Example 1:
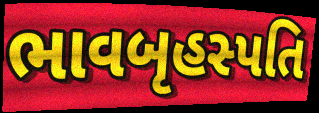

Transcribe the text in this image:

ભાવબૃહસ્પતિ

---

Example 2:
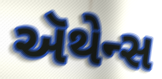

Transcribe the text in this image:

ઍથેન્સ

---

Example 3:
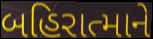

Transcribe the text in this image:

બહિરાત્માને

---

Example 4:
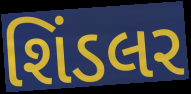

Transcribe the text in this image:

શિંડલર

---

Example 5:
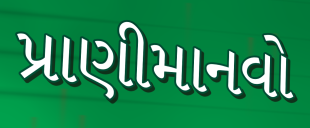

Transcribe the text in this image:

પ્રાણીમાનવો